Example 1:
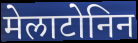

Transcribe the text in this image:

मेलाटोनिन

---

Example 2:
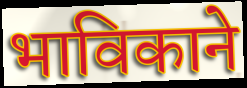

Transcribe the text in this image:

भाविकाने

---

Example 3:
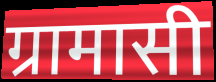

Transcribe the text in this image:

ग्रामासी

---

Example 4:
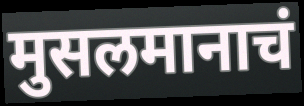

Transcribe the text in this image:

मुसलमानाचं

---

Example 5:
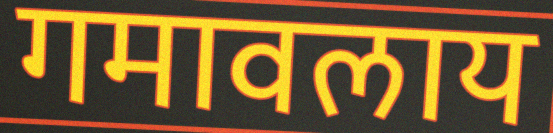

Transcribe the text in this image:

गमावलाय